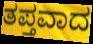
ತಪ್ತವಾದ